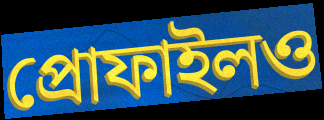
প্রোফাইলও